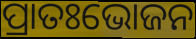
ପ୍ରାତଃଭୋଜନ